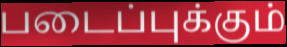
படைப்புக்கும்